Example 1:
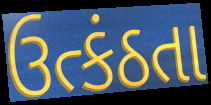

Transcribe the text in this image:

ઉત્કંઠતા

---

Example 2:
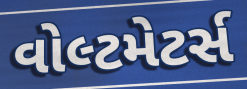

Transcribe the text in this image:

વોલ્ટમેટર્સ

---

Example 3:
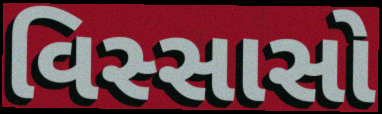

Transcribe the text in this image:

વિસ્સાસો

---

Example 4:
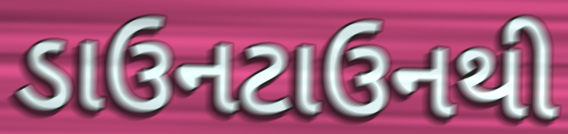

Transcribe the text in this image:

ડાઉનટાઉનથી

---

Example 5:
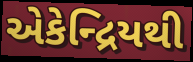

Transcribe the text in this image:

એકેન્દ્રિયથી